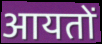
आयतों